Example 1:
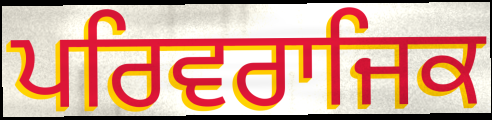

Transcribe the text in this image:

ਪਰਿਵਰਾਜਿਕ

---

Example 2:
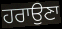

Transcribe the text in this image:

ਹਰਾਉਣਾ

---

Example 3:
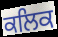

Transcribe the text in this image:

ਕਲਿਕ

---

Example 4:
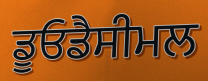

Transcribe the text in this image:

ਡੂਓਡੈਸੀਮਲ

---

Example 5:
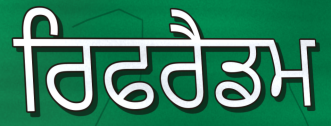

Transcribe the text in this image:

ਰਿਫਰੈਡਮ